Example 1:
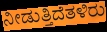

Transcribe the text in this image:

ನೀಡುತ್ತಿದೆತಳಿರು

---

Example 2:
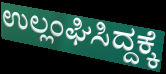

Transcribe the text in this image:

ಉಲ್ಲಂಘಿಸಿದ್ದಕ್ಕೆ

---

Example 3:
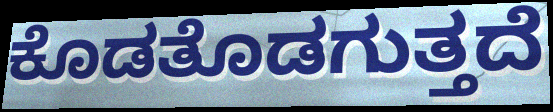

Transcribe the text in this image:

ಕೊಡತೊಡಗುತ್ತದೆ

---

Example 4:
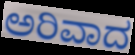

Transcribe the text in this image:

ಅರಿವಾದ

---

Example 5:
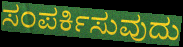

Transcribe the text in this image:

ಸಂಪರ್ಕಿಸುವುದು